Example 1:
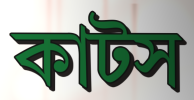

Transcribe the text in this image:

কাটস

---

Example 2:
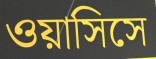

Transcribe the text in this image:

ওয়াসিসে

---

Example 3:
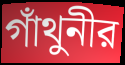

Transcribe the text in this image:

গাঁথুনীর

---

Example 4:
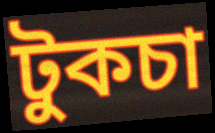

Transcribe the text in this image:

টুকচা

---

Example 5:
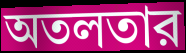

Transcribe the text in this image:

অতলতার